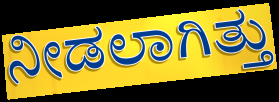
ನೀಡಲಾಗಿತ್ತು